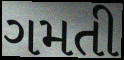
ગમતી